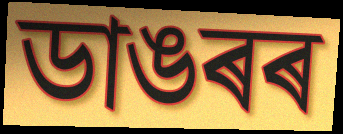
ডাঙৰৰ